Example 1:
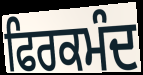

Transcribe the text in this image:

ਫਿਰਕਮੰਦ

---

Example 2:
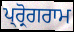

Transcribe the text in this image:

ਪ੍ਰ੍ਰੋਗਰਾਮ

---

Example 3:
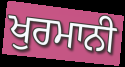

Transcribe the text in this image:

ਖੁਰਮਾਨੀ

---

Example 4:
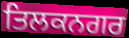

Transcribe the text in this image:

ਤਿਲਕਨਗਰ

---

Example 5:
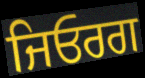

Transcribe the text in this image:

ਜਿਓਰਗ